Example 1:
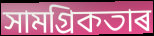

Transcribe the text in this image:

সামগ্ৰিকতাৰ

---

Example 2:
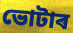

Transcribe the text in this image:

ভোটাৰ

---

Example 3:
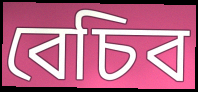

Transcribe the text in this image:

বেচিব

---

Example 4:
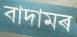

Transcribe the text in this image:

বাদামৰ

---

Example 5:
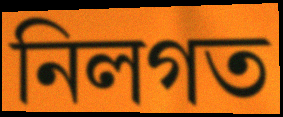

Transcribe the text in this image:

নিলগত